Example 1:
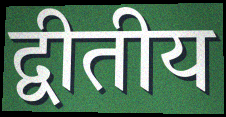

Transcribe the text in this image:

द्वीतीय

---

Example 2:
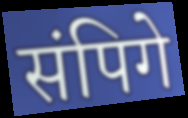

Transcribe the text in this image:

संपिगे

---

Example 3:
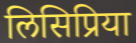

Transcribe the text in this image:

लिसिप्रिया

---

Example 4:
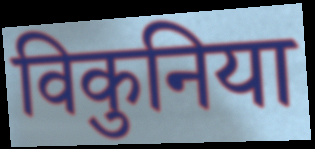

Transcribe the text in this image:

विकुनिया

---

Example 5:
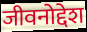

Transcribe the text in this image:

जीवनोद्देश